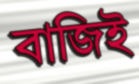
বাজিই